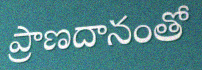
ప్రాణదానంతో